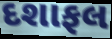
દશાફલ